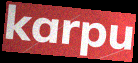
karpu